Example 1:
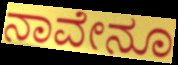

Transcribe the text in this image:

ನಾವೇನೂ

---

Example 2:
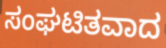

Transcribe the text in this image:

ಸಂಘಟಿತವಾದ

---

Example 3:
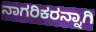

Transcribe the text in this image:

ನಾಗರಿಕರನ್ನಾಗಿ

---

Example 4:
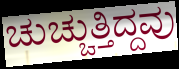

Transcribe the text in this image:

ಚುಚ್ಚುತ್ತಿದ್ದವು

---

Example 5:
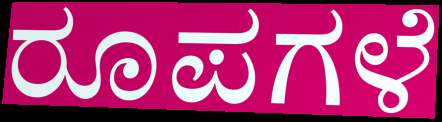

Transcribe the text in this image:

ರೂಪಗಳೆ